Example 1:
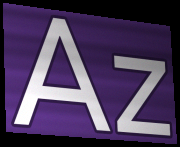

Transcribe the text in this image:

Az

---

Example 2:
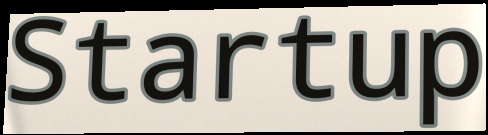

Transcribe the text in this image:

Startup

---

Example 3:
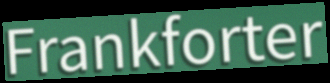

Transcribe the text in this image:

Frankforter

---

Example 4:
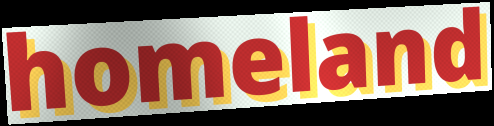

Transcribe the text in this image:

homeland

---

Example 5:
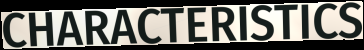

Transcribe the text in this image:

CHARACTERISTICS